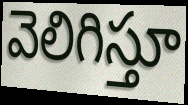
వెలిగిస్తూ